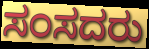
ಸಂಸದರು